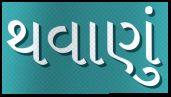
થવાણું